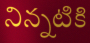
నిన్నటికి